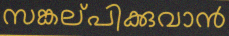
സങ്കല്‌പിക്കുവാൻ